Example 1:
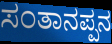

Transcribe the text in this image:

ಸಂತಾನಪ್ಪನ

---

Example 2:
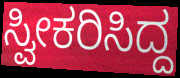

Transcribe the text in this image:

ಸ್ವೀಕರಿಸಿದ್ದ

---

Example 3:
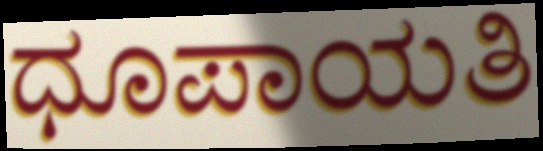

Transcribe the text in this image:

ಧೂಪಾಯತಿ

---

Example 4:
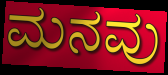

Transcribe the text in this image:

ಮನವು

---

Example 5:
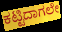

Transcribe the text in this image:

ಕಟ್ಟಿದಾಗಲೇ